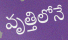
వృత్తిలోనే